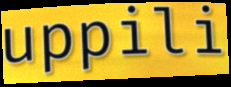
uppili